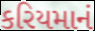
કરિયમાનં